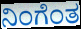
ನಿಂಗೆಂತ